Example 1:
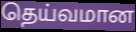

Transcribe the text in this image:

தெய்வமான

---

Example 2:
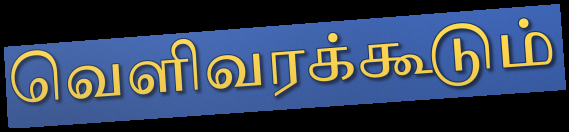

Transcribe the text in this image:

வெளிவரக்கூடும்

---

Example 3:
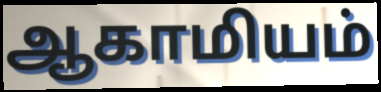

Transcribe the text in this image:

ஆகாமியம்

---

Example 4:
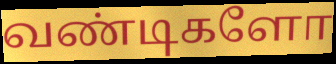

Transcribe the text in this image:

வண்டிகளோ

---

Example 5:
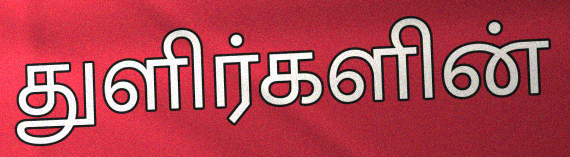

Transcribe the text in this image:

துளிர்களின்